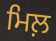
ਮਿਲ਼